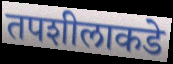
तपशीलाकडे